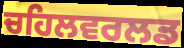
ਚਹਿਲਵਰਲਡ